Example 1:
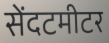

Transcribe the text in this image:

सेंदटमीटर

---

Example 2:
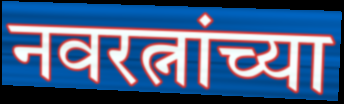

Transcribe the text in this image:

नवरत्नांच्या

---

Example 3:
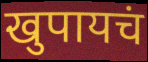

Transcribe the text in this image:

खुपायचं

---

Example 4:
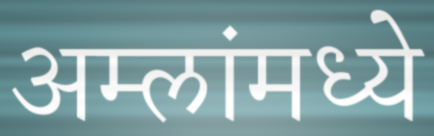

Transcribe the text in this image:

अम्लांमध्ये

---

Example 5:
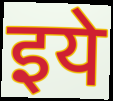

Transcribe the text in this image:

इये